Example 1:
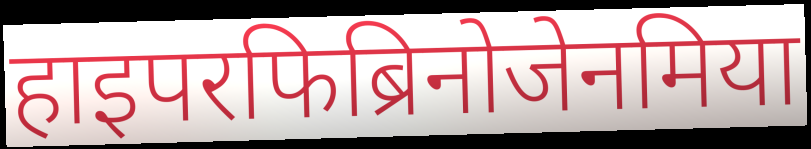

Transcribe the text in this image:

हाइपरफिब्रिनोजेनमिया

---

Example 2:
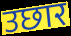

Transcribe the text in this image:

उछार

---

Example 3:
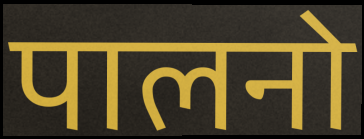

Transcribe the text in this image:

पालनो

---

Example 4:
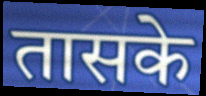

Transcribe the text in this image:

तासके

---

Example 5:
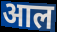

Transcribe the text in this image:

आल